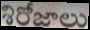
శిరోజాలు